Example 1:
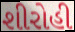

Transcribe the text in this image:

શીરોહી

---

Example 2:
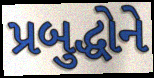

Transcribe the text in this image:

પ્રબુદ્ધોને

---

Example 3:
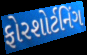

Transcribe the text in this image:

ફોરશોર્ટનિંગ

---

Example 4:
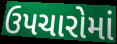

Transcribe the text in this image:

ઉપચારોમાં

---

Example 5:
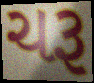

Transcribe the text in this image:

ચરૂ